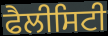
ਫੈਲੀਸਿਟੀ